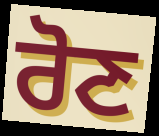
ਰੋਣ